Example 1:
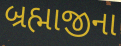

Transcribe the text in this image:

બ્રહ્માજીના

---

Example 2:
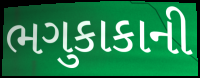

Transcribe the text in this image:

ભગુકાકાની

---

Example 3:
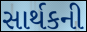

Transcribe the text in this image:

સાર્થકની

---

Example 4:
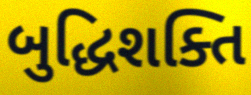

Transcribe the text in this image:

બુદ્ધિશક્તિ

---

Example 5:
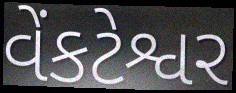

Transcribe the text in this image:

વેંકટેશ્વર